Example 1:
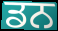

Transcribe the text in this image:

ਡਨ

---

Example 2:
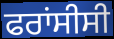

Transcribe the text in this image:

ਫਰਾਂਸੀਸੀ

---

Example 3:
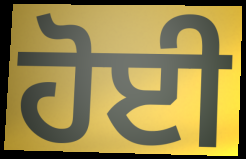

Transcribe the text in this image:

ਹੋਈ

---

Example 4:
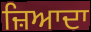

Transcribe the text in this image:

ਜ਼ਿਆਦਾ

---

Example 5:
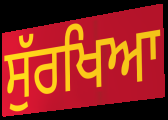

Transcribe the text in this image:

ਸੁੱਰਖਿਆ